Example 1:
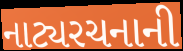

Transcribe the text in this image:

નાટ્યરચનાની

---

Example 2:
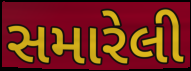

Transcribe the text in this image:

સમારેલી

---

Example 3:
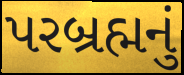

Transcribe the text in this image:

પરબ્રહ્મનું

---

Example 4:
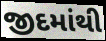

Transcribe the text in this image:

જીદમાંથી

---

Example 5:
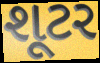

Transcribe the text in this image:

શૂટર